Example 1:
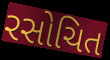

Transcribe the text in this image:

રસોચિત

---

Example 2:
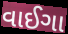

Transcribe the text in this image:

વાઈગા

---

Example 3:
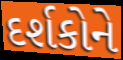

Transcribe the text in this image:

દર્શકોને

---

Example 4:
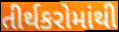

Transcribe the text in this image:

તીર્થકરોમાંથી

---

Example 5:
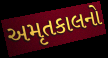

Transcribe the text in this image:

અમૃતકાલનો